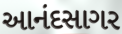
આનંદસાગર